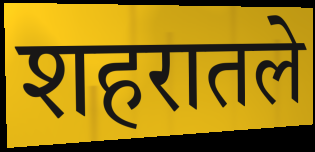
शहरातले